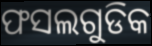
ଫସଲଗୁଡିକ